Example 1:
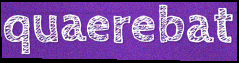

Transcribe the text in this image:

quaerebat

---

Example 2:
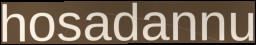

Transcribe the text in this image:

hosadannu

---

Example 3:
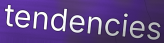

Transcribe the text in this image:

tendencies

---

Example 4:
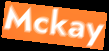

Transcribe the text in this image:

Mckay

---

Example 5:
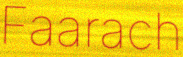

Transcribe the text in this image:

Faarach